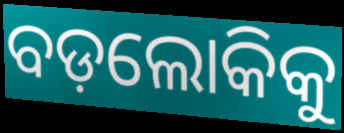
ବଡ଼ଲୋକିକୁ